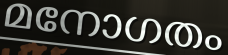
മനോഗതം